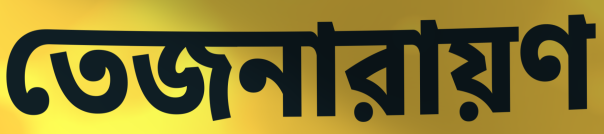
তেজনারায়ণ